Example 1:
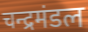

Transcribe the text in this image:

चन्द्रमंडल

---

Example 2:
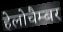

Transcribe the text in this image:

हेलोचैम्बर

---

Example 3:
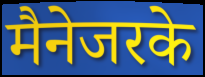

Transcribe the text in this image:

मैनेजरके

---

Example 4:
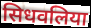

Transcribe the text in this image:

सिधवलिया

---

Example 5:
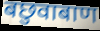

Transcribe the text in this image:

बछुवाबाण